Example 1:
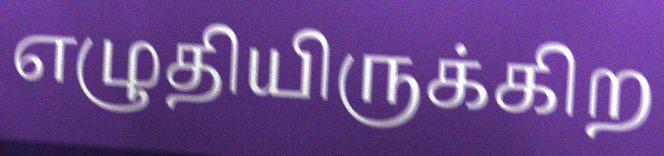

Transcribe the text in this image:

எழுதியிருக்கிற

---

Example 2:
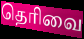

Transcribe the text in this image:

தெரிவை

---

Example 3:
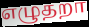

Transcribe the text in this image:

எழுதறா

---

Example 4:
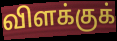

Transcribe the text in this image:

விளக்குக்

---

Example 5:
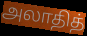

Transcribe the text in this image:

அலாதித்